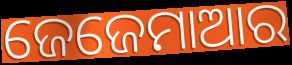
ଜେଜେମାଆର